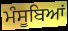
ਮੰਸੂਬਿਆਂ